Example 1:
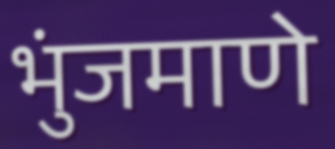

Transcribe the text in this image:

भुंजमाणे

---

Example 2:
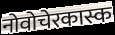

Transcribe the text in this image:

नोवोचेरकास्क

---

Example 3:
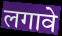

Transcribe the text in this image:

लगावे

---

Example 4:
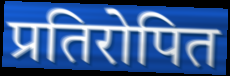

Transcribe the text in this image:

प्रतिरोपित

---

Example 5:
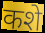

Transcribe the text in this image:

कशे